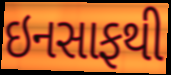
ઇનસાફથી